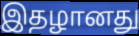
இதழானது